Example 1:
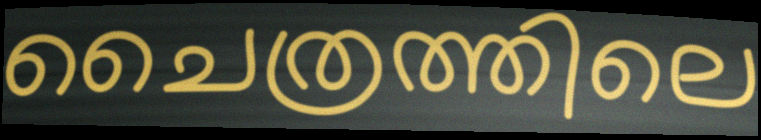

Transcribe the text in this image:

ചൈത്രത്തിലെ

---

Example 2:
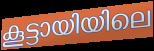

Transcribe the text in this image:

കൂട്ടായിയിലെ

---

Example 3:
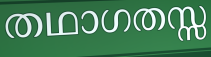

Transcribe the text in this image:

തഥാഗതസ്സ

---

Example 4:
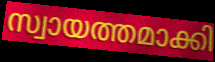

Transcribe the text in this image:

സ്വായത്തമാക്കി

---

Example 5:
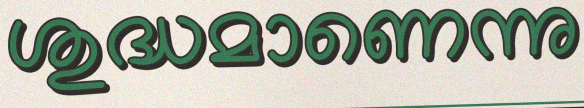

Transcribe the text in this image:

ശുദ്ധമാണെന്നു